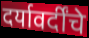
दर्यावर्दींचे